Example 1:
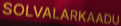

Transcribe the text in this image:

SOLVALARKAADU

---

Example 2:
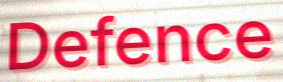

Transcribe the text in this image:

Defence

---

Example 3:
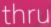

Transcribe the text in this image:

thru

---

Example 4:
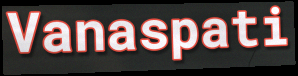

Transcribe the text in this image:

Vanaspati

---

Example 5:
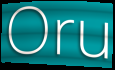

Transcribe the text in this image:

Oru